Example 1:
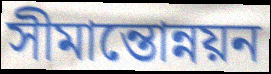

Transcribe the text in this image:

সীমান্তোন্নয়ন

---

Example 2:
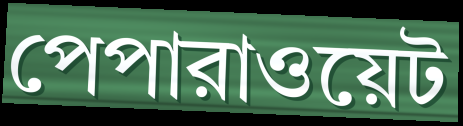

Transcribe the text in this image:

পেপারাওয়েট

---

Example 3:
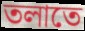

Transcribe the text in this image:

তলাতে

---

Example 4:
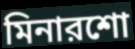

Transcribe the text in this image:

মিনারশো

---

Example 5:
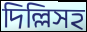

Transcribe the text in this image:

দিল্লিসহ